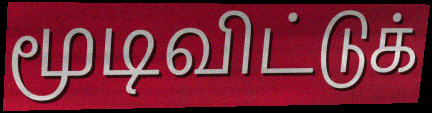
மூடிவிட்டுக்